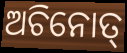
ଅଚିନୋତ୍